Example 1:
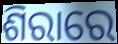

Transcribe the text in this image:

ଶିରାରେ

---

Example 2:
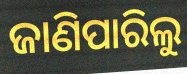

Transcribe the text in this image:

ଜାଣିପାରିଲୁ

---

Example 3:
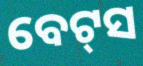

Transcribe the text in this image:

ବେଟ୍‌ସ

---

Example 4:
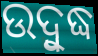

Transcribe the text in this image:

ଉଦ୍ୱୁଦ୍ଧ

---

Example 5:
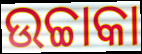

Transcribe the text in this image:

ଉଚ୍ଚାକା